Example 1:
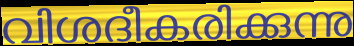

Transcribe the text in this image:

വിശദീകരിക്കുന്നു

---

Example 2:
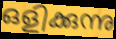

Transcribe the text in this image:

ഒളിക്കുന്നു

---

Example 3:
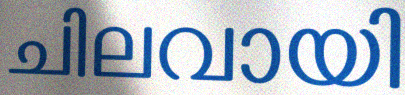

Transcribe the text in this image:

ചിലവായി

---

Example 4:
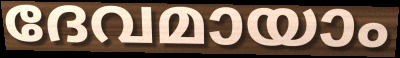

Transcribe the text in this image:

ദേവമായാം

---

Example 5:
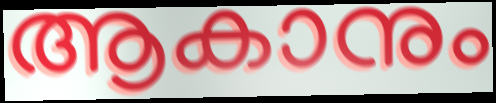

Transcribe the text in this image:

ആകാനും